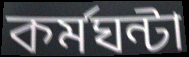
কর্মঘন্টা